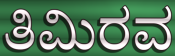
ತಿಮಿರವ